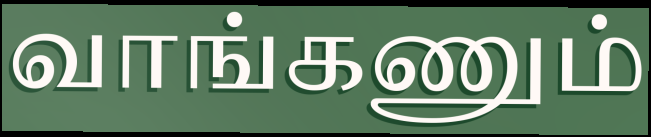
வாங்கணும்